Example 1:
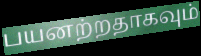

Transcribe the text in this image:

பயனற்றதாகவும்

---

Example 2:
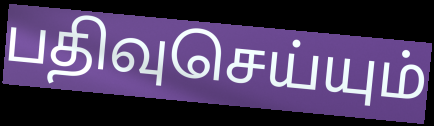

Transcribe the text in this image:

பதிவுசெய்யும்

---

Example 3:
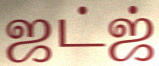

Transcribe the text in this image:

ஜட்ஜ்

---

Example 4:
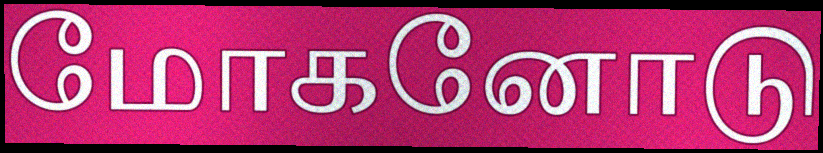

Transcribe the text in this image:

மோகனோடு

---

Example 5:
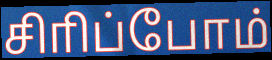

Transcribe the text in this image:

சிரிப்போம்